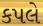
કપલે